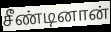
சீண்டினான்